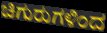
ಚಿಗುರುಗಳಿಂದ